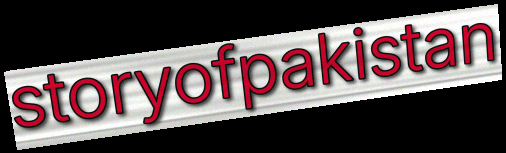
storyofpakistan